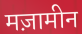
मज़ामीन